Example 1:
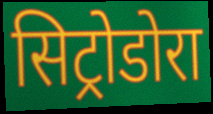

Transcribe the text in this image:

सिट्रोडोरा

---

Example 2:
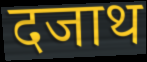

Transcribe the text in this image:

दजाथ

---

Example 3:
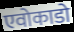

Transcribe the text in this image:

एवोकाडो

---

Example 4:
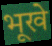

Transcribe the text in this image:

भूखे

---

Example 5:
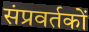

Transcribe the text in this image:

संप्रवर्तकों